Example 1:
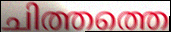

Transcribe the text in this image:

ചിത്തത്തെ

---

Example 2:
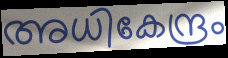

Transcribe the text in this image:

അധികേന്ദ്രം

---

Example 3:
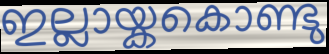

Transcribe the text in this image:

ഇല്ലായ്കകൊണ്ടു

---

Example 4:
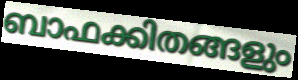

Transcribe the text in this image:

ബാഫക്കിതങ്ങളും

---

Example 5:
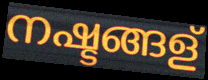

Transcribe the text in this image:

നഷ്ടങ്ങള്